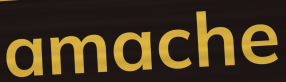
amache